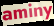
aminy